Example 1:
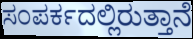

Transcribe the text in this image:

ಸಂಪರ್ಕದಲ್ಲಿರುತ್ತಾನೆ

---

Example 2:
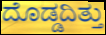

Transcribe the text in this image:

ದೊಡ್ಡದಿತ್ತು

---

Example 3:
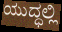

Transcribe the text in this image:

ಯುದ್ಧಲ್ಲಿ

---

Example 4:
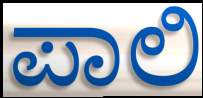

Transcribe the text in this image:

ಪಾಲಿ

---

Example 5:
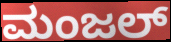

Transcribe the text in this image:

ಮಂಜಲ್